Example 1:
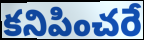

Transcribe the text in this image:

కనిపించరే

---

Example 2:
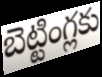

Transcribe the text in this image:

బెట్టింగ్లకు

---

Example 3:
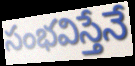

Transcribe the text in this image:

సంభవిస్తేనే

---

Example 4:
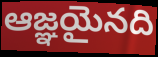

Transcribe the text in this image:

ఆజ్ఞయైనది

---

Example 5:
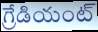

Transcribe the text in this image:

గ్రేడియంట్